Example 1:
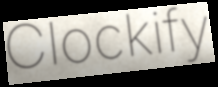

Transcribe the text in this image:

Clockify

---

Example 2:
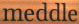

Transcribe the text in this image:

meddle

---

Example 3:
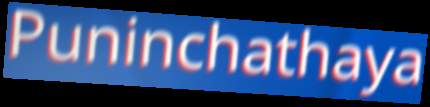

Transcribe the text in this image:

Puninchathaya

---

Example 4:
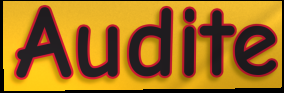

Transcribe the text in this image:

Audite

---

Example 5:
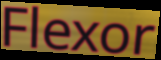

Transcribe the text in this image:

Flexor